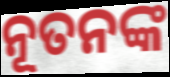
ନୂତନଙ୍କ